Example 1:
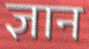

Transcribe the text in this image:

ज्ञान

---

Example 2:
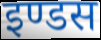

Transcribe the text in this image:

इण्डस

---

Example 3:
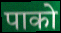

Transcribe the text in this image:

पाको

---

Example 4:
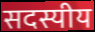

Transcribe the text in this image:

सदस्यीय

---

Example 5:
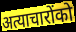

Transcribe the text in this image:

अत्याचारोंको